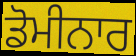
ਡੋਮੀਨਾਰ